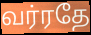
வர்ரதே